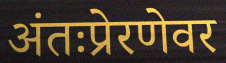
अंतःप्रेरणेवर